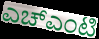
ಎಚ್ಎಂಟಿ